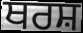
ਥਰਸ਼